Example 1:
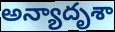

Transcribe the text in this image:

అన్యాదృశా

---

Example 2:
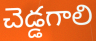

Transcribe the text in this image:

చెడ్డగాలి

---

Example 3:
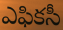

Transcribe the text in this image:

ఎఫికసీ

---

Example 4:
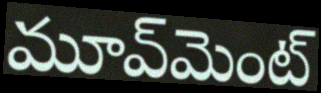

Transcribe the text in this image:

మూవ్‌మెంట్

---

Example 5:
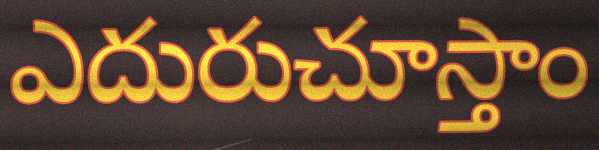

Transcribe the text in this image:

ఎదురుచూస్తాం